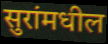
सुरांमधील